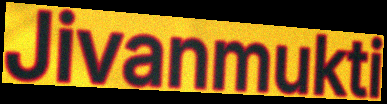
Jivanmukti